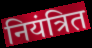
नियंत्रित